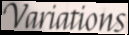
Variations